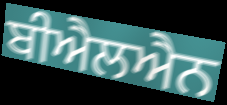
ਬੀਐਲਐਨ